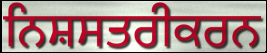
ਨਿਸ਼ਸਤਰੀਕਰਨ